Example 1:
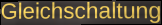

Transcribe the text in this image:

Gleichschaltung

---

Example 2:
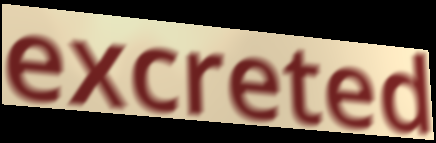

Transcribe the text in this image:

excreted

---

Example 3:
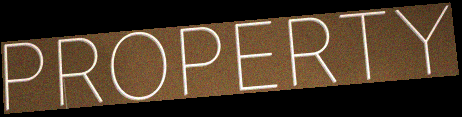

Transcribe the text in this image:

PROPERTY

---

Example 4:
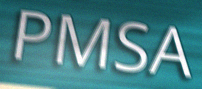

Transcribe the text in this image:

PMSA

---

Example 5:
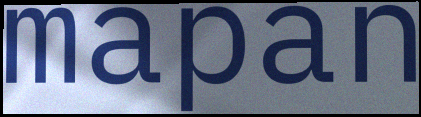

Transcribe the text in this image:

mapan